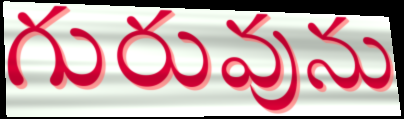
గురువును